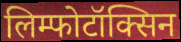
लिम्फोटॉक्सिन